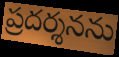
ప్రదర్శనను